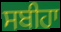
ਸਬੀਹਾ